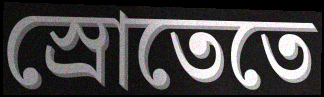
স্রোতেতে